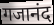
गजानंद